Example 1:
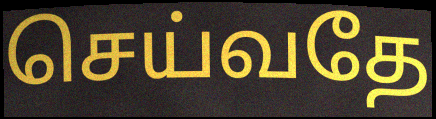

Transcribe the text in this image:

செய்வதே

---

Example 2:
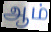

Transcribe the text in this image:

ஆம்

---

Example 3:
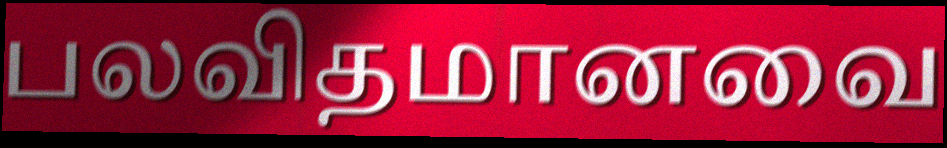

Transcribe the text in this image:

பலவிதமானவை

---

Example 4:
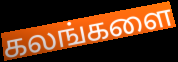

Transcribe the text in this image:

கலங்களை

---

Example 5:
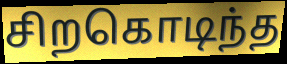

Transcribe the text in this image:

சிறகொடிந்த